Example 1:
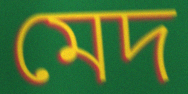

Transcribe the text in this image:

মেদ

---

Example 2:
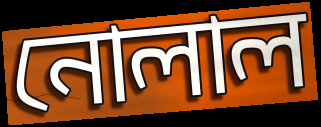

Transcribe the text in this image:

নোলাল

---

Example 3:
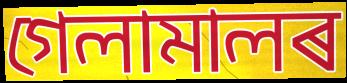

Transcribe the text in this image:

গেলামালৰ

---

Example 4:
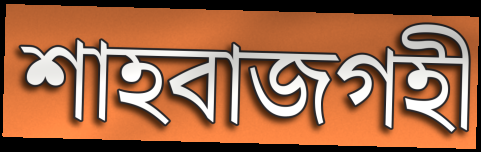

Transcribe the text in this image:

শাহবাজগহী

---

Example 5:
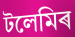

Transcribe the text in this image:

টলেমিৰ